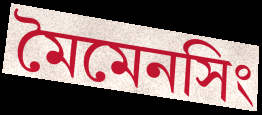
মৈমেনসিং